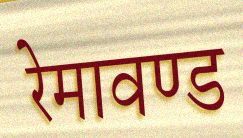
रेमावण्ड